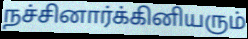
நச்சினார்க்கினியரும்